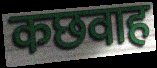
कछवाह